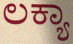
ಲಕ್ಯಾ